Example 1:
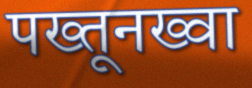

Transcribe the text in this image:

पख्तूनख्वा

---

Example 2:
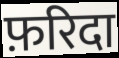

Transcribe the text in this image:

फ़रिदा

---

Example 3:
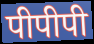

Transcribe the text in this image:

पीपीपी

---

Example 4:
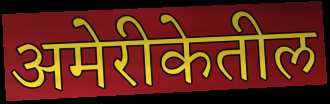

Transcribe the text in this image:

अमेरीकेतील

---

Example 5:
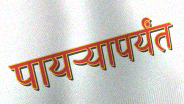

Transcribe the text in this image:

पायऱ्यापर्यंत